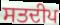
ਸਤਦੀਪ